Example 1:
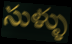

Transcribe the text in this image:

సుళ్ళు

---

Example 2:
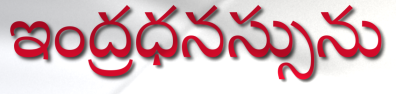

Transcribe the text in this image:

ఇంద్రధనస్సును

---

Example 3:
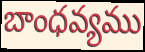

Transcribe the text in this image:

బాంధవ్యము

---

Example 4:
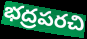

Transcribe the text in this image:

భద్రపరచి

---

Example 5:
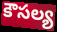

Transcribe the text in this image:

కౌసల్య